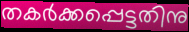
തകർക്കപ്പെട്ടതിനു